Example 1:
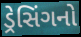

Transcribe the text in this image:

ડ્રેસિંગનો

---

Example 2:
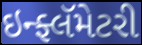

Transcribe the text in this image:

ઇન્ફ્લૅમેટરી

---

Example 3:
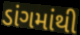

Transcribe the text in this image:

ડાંગમાંથી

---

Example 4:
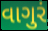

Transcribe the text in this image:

વાગુરં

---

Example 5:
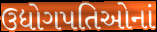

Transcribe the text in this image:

ઉદ્યોગપતિઓનાં